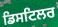
ਡਿਸਟਿਲਰ